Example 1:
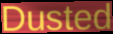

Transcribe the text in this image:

Dusted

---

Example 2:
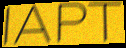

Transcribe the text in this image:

IAPT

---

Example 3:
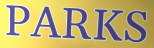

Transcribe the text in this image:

PARKS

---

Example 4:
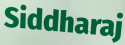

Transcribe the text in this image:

Siddharaj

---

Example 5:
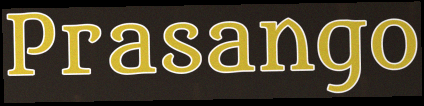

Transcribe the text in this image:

Prasango